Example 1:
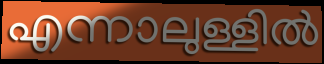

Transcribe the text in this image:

എന്നാലുള്ളിൽ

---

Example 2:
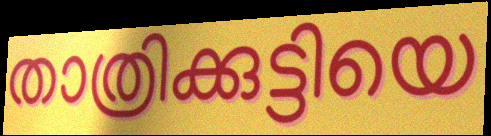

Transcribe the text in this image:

താത്രിക്കുട്ടിയെ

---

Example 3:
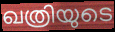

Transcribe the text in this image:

ഖത്രിയുടെ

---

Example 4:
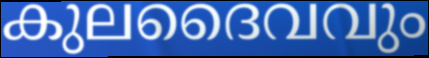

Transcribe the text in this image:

കുലദൈവവും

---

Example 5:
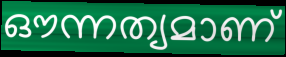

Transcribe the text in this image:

ഔന്നത്യമാണ്